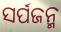
ସର୍ପଜନ୍ମ